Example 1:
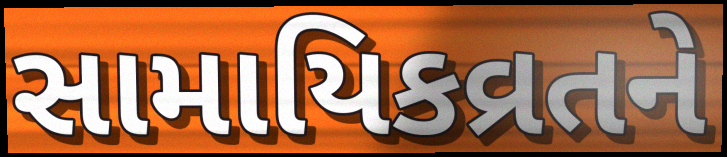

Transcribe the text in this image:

સામાયિકવ્રતને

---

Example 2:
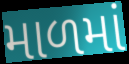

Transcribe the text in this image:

માળમાં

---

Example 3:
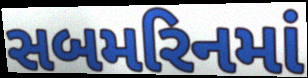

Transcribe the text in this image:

સબમરિનમાં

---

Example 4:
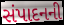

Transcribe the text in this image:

સંપાદનની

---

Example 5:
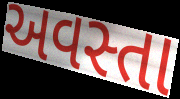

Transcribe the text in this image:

અવસ્તા